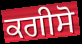
ਕਗੀਸੋ